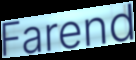
Farend